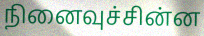
நினைவுச்சின்ன